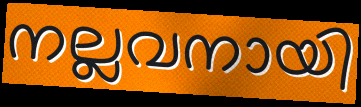
നല്ലവനായി